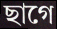
ছাগে